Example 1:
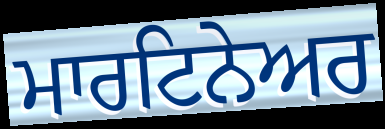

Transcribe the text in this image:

ਮਾਰਟਿਨੇਅਰ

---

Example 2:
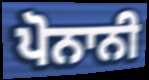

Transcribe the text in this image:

ਪੋਨਾਨੀ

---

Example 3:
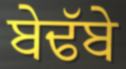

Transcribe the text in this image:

ਬੇਢੱਬੇ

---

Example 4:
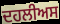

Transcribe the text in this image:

ਦਹਲੀਅਸ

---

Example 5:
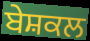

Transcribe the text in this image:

ਬੇਸ਼ਕਲ